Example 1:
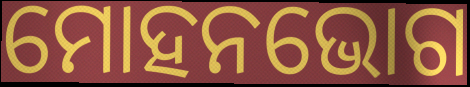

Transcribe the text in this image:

ମୋହନଭୋଗ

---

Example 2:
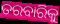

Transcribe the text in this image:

ତରବାରିକୁ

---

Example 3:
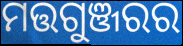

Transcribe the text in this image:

ମତ୍ତଗୁଞ୍ଜରର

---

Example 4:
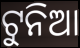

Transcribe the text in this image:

ଟୁନିଆ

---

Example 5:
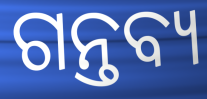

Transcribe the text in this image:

ଗନ୍ତବ୍ୟ